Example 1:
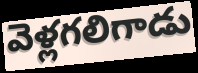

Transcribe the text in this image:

వెళ్లగలిగాడు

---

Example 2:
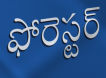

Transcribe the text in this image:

ఫోరెస్టర్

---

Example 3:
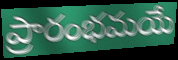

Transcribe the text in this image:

ప్రారంభమయే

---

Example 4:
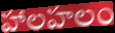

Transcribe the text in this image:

హాలహలం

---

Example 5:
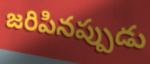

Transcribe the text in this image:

జరిపినప్పుడు